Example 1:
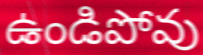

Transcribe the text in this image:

ఉండిపోవు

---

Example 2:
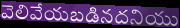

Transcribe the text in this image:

వెలివేయబడినదనియు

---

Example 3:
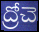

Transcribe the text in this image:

ద్రోచె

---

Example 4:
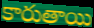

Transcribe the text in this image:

కారుతాయి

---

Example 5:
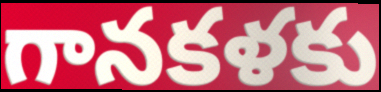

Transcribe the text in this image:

గానకళకు